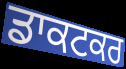
ਡਾਕਟਕਰ